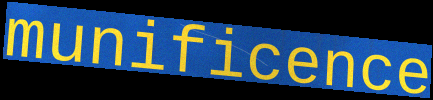
munificence